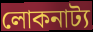
লোকনাট্য